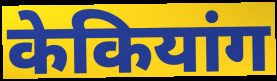
केकियांग